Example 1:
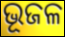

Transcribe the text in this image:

ଭୂଜଳ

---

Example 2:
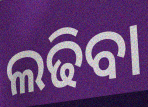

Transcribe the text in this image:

ଲଢିବା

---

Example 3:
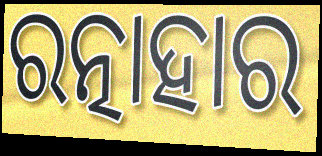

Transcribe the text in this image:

ରତ୍ନାହାର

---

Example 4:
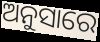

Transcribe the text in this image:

ଅନୁସାରେ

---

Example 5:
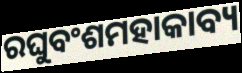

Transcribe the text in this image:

ରଘୁବଂଶମହାକାବ୍ୟ